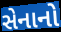
સેનાનો